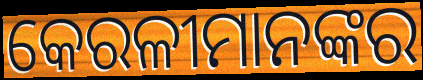
କେରଳୀମାନଙ୍କର